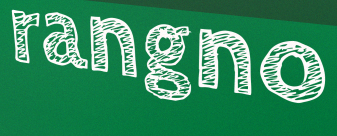
rangno